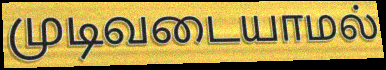
முடிவடையாமல்